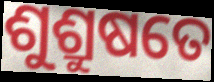
ଶୁଶ୍ରୁଷତେ